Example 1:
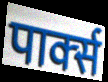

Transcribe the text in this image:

पार्क्‍स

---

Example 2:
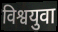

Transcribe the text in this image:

विश्वयुवा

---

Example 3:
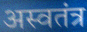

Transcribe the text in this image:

अस्वतंत्र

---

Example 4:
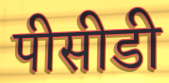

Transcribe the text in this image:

पीसीडी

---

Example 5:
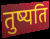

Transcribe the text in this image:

तुष्यति